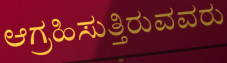
ಆಗ್ರಹಿಸುತ್ತಿರುವವರು